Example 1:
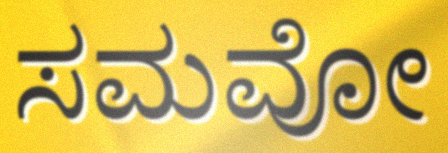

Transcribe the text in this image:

ಸಮವೋ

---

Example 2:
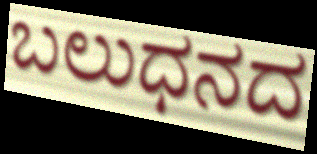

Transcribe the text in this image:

ಬಲುಧನದ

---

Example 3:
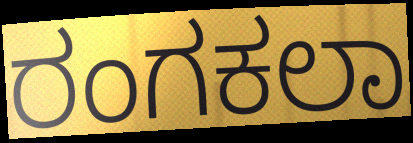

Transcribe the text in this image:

ರಂಗಕಲಾ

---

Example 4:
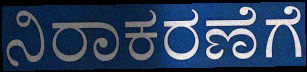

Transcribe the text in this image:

ನಿರಾಕರಣೆಗೆ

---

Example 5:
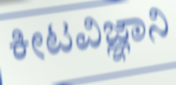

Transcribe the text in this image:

ಕೀಟವಿಜ್ಞಾನಿ